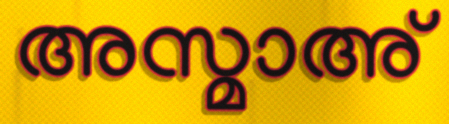
അസ്മാഅ്